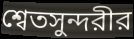
শ্বেতসুন্দরীর